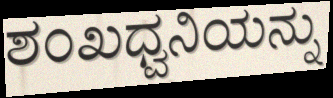
ಶಂಖಧ್ವನಿಯನ್ನು